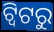
ଟ୍ବିଟରୁ